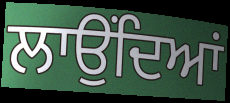
ਲਾਉਂਦਿਆਂ